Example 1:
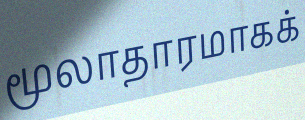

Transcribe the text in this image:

மூலாதாரமாகக்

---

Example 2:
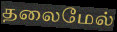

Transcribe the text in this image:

தலைமேல்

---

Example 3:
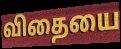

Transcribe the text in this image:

விதையை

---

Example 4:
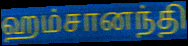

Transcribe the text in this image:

ஹம்சானந்தி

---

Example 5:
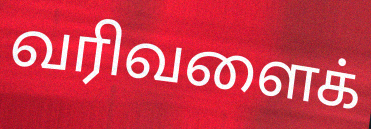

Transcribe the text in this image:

வரிவளைக்